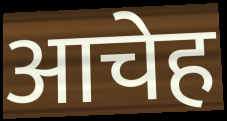
आचेह